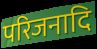
परिजनादि